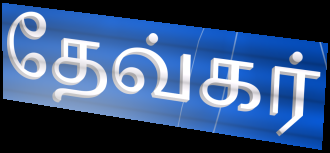
தேவ்கர்